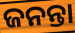
ଜନନ୍ତା